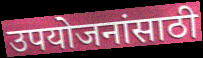
उपयोजनांसाठी